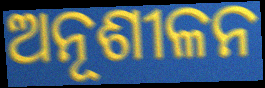
ଅନୂଶୀଳନ